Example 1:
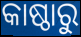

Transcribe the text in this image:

କାଷ୍ଠାରୁ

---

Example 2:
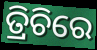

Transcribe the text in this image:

ତ୍ରିଚିରେ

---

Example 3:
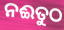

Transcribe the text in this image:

ନଈତୁଠ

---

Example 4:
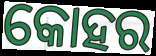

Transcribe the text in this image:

କୋହର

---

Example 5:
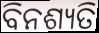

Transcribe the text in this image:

ବିନଶ୍ୟତି